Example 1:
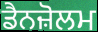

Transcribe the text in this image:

ਡੈਨਜ਼ੋਲਮ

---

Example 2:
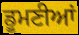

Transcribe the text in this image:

ਡੂਮਣੀਆਂ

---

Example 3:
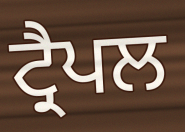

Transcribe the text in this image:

ਟ੍ਰੈਪਲ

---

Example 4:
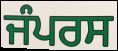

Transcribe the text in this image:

ਜੰਪਰਸ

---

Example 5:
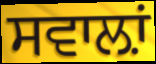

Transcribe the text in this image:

ਸਵਾਲ਼ਾਂ